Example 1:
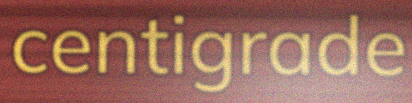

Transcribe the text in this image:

centigrade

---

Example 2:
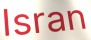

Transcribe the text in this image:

Isran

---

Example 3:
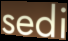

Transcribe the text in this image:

sedi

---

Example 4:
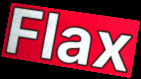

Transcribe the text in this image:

Flax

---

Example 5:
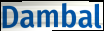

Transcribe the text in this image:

Dambal